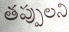
తప్పులని